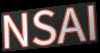
NSAI